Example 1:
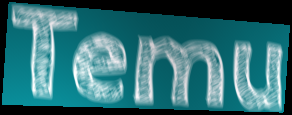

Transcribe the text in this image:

Temu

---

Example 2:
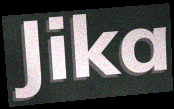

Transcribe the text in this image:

Jika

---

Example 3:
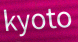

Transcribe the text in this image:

kyoto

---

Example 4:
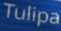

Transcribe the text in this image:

Tulipa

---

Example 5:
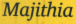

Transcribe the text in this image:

Majithia